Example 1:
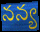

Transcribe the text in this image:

నన్య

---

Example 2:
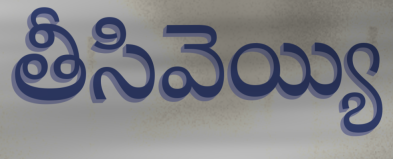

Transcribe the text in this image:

తీసివెయ్యి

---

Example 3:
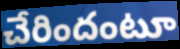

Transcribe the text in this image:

చేరిందంటూ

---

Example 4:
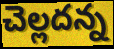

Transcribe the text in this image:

చెల్లదన్న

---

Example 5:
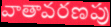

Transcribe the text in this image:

వాతావరణపు